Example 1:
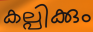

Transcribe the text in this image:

കല്പിക്കും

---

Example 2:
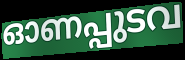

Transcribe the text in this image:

ഓണപ്പുടവ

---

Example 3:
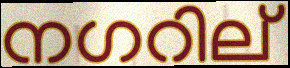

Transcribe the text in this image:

നഗറില്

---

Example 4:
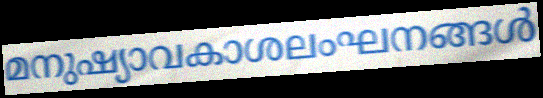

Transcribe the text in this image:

മനുഷ്യാവകാശലംഘനങ്ങൾ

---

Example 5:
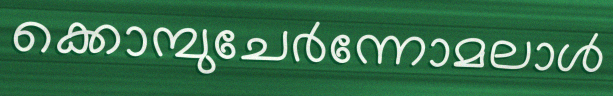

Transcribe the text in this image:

ക്കൊമ്പുചേർന്നോമലാൾ